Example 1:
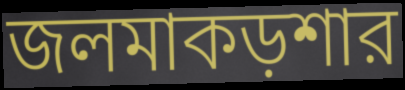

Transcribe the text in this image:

জলমাকড়শার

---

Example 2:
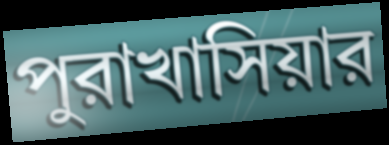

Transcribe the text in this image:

পুরাখাসিয়ার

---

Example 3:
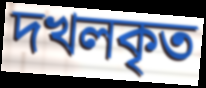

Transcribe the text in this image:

দখলকৃত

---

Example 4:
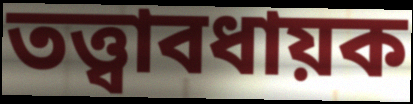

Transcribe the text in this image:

তত্ত্বাবধায়ক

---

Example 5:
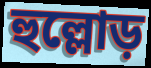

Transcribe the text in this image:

হুল্লোড়